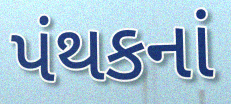
પંથકનાં